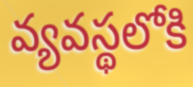
వ్యవస్థలోకి